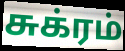
சுக்ரம்